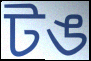
টঙ